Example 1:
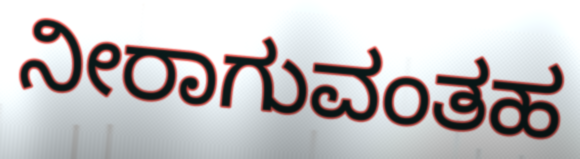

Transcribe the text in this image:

ನೀರಾಗುವಂತಹ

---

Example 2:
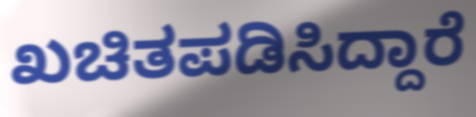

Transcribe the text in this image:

ಖಚಿತಪಡಿಸಿದ್ದಾರೆ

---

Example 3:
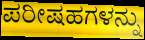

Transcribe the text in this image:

ಪರೀಷಹಗಳನ್ನು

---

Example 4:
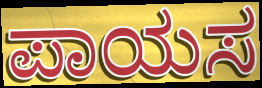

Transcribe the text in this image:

ಪಾಯಸ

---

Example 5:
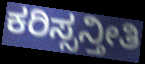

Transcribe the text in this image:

ಕರಿಸ್ಸನ್ತೀತಿ